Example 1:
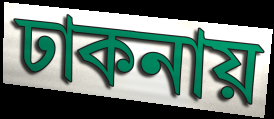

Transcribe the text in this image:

ঢাকনায়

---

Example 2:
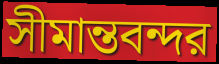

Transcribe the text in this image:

সীমান্তবন্দর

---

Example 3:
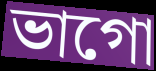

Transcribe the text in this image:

ভাগো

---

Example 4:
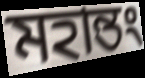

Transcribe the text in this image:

মহান্তং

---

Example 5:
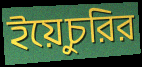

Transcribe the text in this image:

ইয়েচুরির